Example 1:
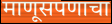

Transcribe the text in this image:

माणूसपणाचा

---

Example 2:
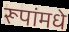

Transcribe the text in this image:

रूपांमधे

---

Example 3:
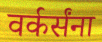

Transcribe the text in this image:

वर्कर्संना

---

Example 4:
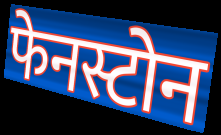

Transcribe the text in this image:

फेनस्टोन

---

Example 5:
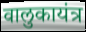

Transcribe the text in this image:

वालुकायंत्र